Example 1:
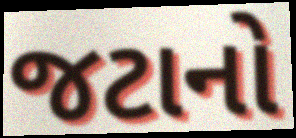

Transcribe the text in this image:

જટાનો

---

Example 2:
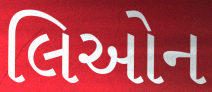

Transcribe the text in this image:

લિઓન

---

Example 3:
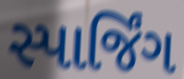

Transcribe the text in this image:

સ્પાર્જિંગ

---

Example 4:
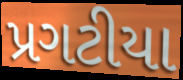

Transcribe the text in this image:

પ્રગટીયા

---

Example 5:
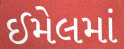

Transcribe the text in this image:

ઈમેલમાં